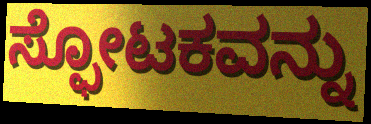
ಸ್ಫೋಟಕವನ್ನು